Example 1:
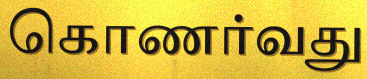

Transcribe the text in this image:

கொணர்வது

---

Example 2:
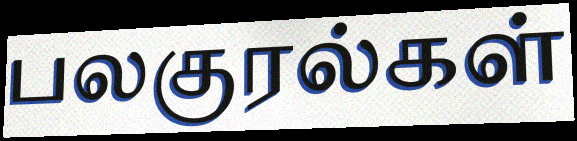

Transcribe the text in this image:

பலகுரல்கள்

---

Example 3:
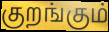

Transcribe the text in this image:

குறங்கும்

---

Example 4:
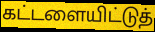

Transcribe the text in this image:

கட்டளையிட்டுத்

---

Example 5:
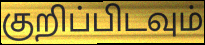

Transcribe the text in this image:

குறிப்பிடவும்